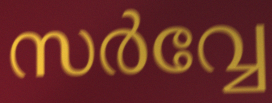
സർവ്വേ